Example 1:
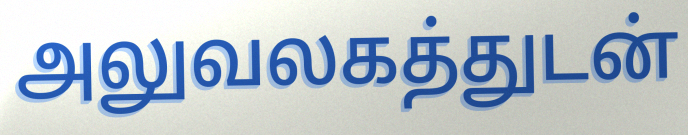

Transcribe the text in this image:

அலுவலகத்துடன்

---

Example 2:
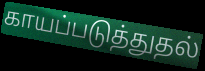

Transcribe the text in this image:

காயப்படுத்துதல்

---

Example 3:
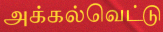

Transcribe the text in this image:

அக்கல்வெட்டு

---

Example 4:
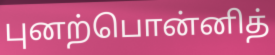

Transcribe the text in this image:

புனற்பொன்னித்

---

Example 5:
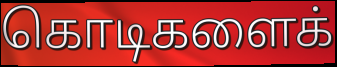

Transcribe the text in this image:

கொடிகளைக்